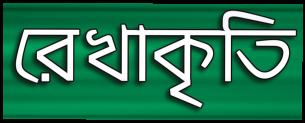
রেখাকৃতি